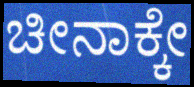
ಚೀನಾಕ್ಕೇ